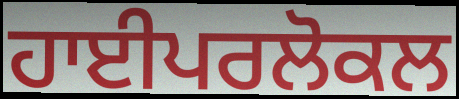
ਹਾਈਪਰਲੋਕਲ